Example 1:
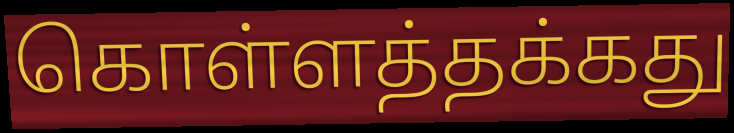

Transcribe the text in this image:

கொள்ளத்தக்கது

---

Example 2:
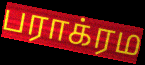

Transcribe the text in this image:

பராக்ரம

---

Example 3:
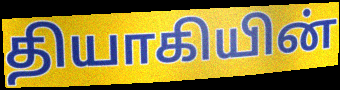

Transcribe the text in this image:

தியாகியின்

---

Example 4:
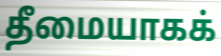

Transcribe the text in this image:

தீமையாகக்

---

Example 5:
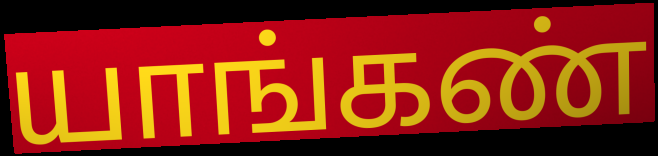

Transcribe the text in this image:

யாங்கண்